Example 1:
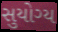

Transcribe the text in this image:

સુયોગ્ય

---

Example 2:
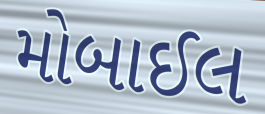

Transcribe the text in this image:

મોબાઈલ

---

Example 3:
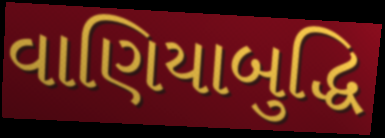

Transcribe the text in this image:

વાણિયાબુદ્ધિ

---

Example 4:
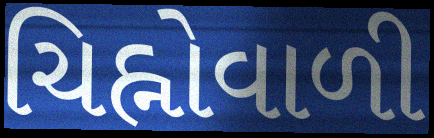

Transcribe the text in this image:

ચિહ્નોવાળી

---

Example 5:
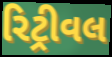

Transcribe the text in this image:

રિટ્રીવલ